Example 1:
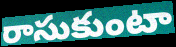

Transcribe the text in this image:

రాసుకుంటా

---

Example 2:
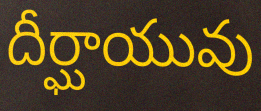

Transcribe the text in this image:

దీర్ఘాయువు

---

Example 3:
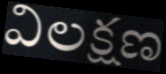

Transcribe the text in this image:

విలక్షణ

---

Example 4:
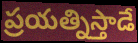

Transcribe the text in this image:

ప్రయత్నిస్తాడే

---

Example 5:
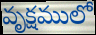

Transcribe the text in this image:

వృక్షములో